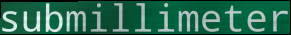
submillimeter